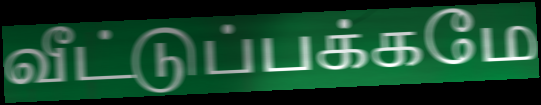
வீட்டுப்பக்கமே